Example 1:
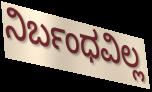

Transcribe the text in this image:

ನಿರ್ಬಂಧವಿಲ್ಲ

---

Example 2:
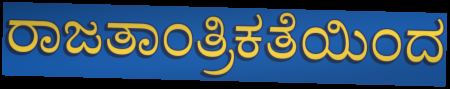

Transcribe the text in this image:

ರಾಜತಾಂತ್ರಿಕತೆಯಿಂದ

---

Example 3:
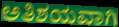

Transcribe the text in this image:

ಅತಿಶಯವಾಗಿ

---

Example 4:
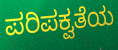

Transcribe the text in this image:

ಪರಿಪಕ್ವತೆಯ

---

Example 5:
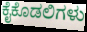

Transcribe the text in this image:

ಕೈಕೊಡಲಿಗಳು